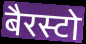
बैरस्टो